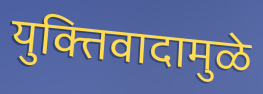
युक्तिवादामुळे